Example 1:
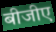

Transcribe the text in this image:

बीजीए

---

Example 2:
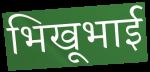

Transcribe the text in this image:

भिखूभाई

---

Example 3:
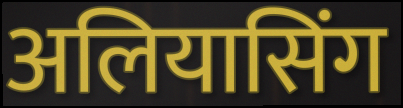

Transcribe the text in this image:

अलियासिंग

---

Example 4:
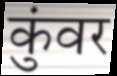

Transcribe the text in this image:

कुंवर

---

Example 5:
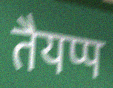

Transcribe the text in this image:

तैयप्प